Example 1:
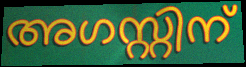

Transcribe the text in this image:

അഗസ്റ്റിന്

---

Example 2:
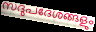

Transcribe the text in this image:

സദുപദേശങ്ങളും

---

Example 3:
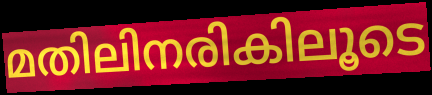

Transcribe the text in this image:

മതിലിനരികിലൂടെ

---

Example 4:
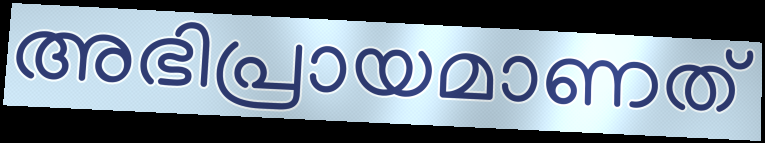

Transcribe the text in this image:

അഭിപ്രായമാണത്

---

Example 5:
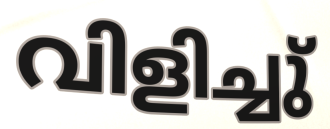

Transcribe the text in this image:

വിളിച്ചു്